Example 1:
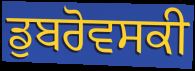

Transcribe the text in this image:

ਡੁਬਰੋਵਸਕੀ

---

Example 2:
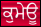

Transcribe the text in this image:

ਕੁਮੇਊ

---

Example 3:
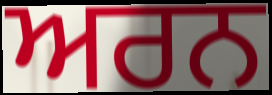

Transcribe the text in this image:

ਅਰਨ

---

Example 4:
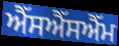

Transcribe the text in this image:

ਐੱਸਐੱਸਐੱਮ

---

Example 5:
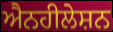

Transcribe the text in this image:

ਐਨਹੀਲੇਸ਼ਨ